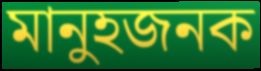
মানুহজনক